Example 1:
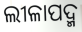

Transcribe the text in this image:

ଲୀଳାପଦ୍ମ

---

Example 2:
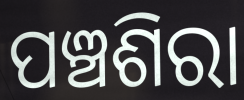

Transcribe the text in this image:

ପଞ୍ଚଶିରା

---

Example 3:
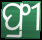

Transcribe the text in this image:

ଫ୍ରୀ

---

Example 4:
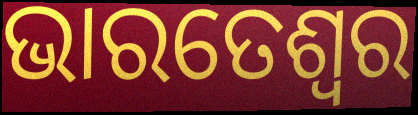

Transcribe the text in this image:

ଭାରତେଶ୍ୱର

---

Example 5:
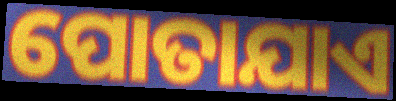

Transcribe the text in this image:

ପୋତାଯାଏ